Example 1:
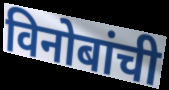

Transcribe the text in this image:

विनोबांची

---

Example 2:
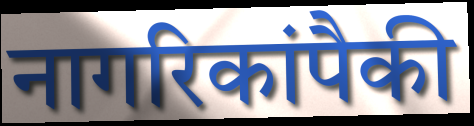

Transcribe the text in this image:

नागरिकांपैकी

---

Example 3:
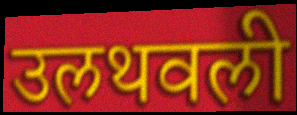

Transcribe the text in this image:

उलथवली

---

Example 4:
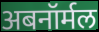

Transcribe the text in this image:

अबनॉर्मल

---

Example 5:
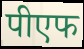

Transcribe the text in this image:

पीएफ